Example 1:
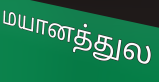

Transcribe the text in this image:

மயானத்துல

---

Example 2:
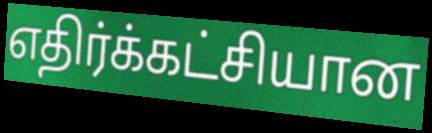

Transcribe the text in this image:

எதிர்க்கட்சியான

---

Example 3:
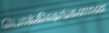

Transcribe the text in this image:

பொக்கிஷங்களான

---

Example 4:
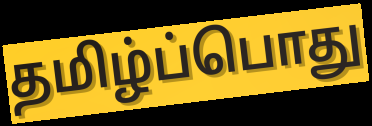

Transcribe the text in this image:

தமிழ்ப்பொது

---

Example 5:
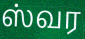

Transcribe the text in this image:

ஸ்வர